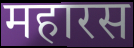
महारस